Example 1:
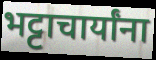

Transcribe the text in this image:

भट्टाचार्यांना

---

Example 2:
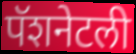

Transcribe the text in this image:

पॅशनेटली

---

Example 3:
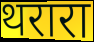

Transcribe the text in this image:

थरारा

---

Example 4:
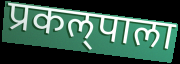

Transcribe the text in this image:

प्रकल्पाला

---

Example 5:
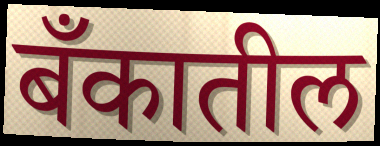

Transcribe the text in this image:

बँकातील